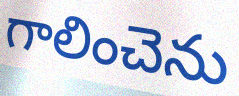
గాలించెను